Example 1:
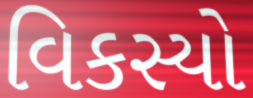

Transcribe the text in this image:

વિકસ્યો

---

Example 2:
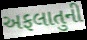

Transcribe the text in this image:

અફલાતુની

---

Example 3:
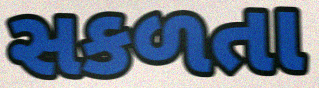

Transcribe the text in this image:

સકળતા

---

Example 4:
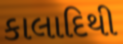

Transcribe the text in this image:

કાલાદિથી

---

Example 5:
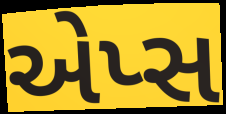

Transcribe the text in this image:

એપ્સ